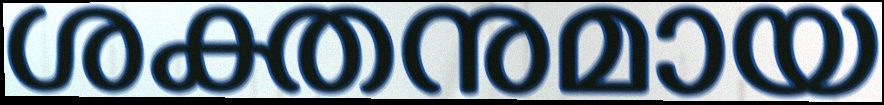
ശക്തനുമായ